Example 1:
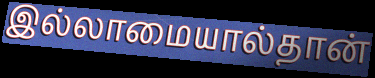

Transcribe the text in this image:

இல்லாமையால்தான்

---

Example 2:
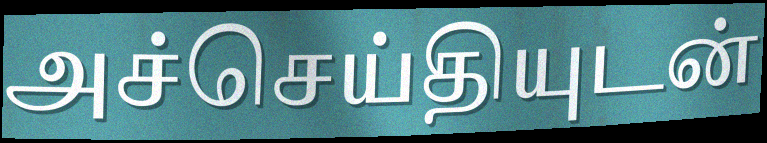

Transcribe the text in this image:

அச்செய்தியுடன்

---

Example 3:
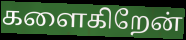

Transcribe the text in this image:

களைகிறேன்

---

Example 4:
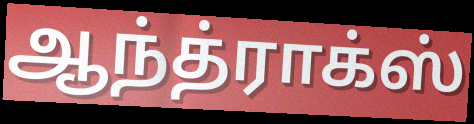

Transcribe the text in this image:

ஆந்த்ராக்ஸ்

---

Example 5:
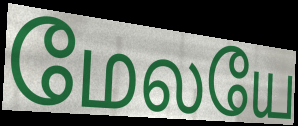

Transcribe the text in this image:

மேலயே